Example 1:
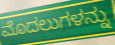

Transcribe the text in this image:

ಮೊದಲುಗಳನ್ನು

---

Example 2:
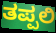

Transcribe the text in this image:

ತಪ್ಪಲಿ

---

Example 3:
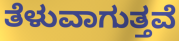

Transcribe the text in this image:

ತೆಳುವಾಗುತ್ತವೆ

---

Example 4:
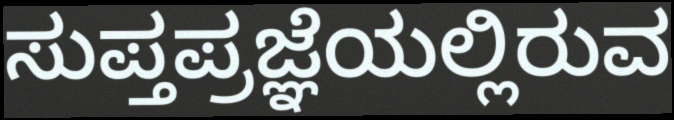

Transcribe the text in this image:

ಸುಪ್ತಪ್ರಜ್ಞೆಯಲ್ಲಿರುವ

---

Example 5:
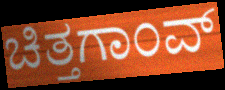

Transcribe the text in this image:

ಚಿತ್ತಗಾಂವ್